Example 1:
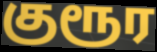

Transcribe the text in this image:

குரூர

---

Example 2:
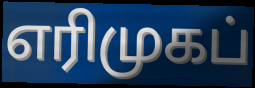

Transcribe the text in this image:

எரிமுகப்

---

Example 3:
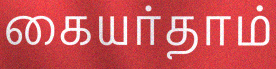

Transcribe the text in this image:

கையர்தாம்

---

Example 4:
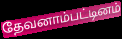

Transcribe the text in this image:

தேவனாம்பட்டினம்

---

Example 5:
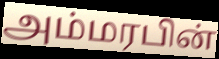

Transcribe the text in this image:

அம்மரபின்